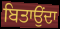
ਬਿਤਾਉਂਦਾ